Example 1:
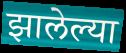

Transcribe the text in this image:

झालेल्या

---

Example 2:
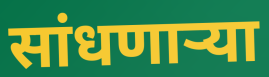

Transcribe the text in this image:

सांधणार्‍या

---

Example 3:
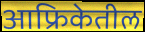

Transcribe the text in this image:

आफ्रिकेतील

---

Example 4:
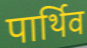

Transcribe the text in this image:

पार्थिव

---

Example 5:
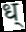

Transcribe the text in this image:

ध्